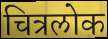
चित्रलोक